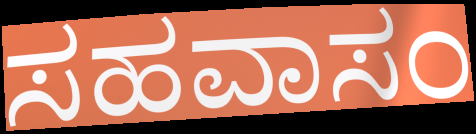
ಸಹವಾಸಂ